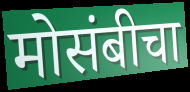
मोसंबीचा